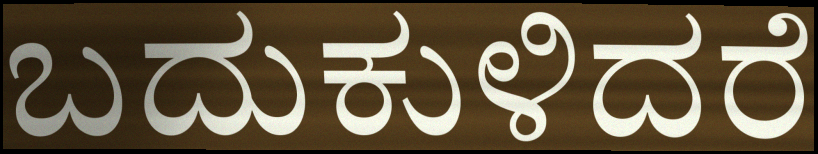
ಬದುಕುಳಿದರೆ